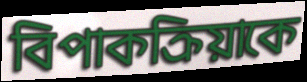
বিপাকক্রিয়াকে